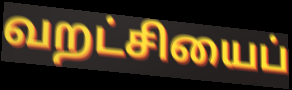
வறட்சியைப்